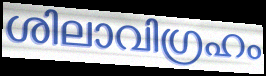
ശിലാവിഗ്രഹം